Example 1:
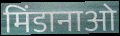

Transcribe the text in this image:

मिंडानाओ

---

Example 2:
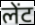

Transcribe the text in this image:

लेंट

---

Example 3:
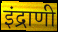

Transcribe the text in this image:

इंद्राणी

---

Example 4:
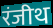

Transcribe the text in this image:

रंजीथ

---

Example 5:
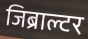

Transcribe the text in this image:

जिब्राल्टर